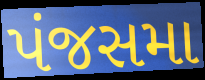
પંજસમા